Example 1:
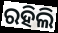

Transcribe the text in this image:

ରହିଲି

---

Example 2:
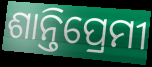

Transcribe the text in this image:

ଶାନ୍ତିପ୍ରେମୀ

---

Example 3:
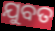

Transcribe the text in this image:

ଯୁବତ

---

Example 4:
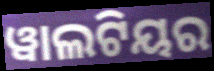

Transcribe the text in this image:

ୱାଲଟିୟର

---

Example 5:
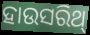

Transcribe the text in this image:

ହାଉସରିଥ୍